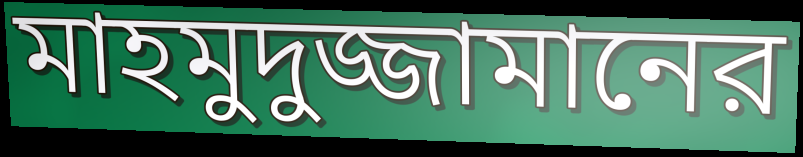
মাহমুদুজ্জামানের